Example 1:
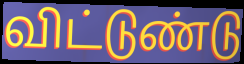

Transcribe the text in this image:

விட்டுண்டு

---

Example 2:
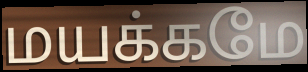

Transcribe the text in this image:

மயக்கமே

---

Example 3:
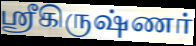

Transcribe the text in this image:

ஶ்ரீகிருஷ்ணர்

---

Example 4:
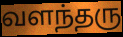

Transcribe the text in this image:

வளந்தரு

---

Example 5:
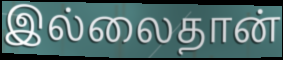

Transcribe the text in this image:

இல்லைதான்